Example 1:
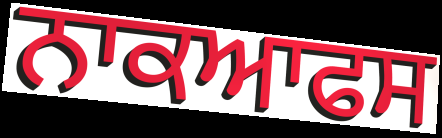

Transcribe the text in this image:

ਨਾਕਆਫਸ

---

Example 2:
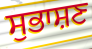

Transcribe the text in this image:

ਸੁਭਾਸ਼ਣ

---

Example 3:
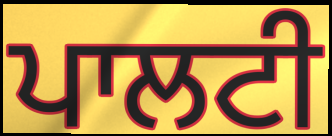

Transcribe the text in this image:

ਪਾਲਟੀ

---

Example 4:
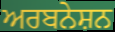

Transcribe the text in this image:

ਅਰਬਨੇਸ਼ਨ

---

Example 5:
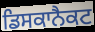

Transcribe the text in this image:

ਡਿਸਕਾਨੈਕਟ